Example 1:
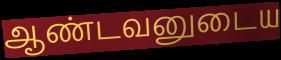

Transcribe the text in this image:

ஆண்டவனுடைய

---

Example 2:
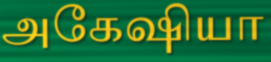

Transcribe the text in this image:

அகேஷியா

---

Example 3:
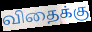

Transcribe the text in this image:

விதைக்கு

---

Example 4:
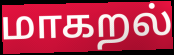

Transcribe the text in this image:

மாகறல்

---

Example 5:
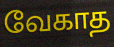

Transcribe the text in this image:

வேகாத